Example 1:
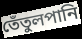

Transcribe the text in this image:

তেঁতুলপানি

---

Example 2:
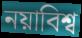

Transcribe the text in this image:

নয়াবিশ্ব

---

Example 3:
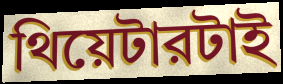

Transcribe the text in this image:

থিয়েটারটাই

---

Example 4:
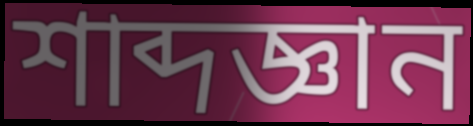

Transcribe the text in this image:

শাব্দজ্ঞান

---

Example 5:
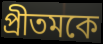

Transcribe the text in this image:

প্রীতমকে